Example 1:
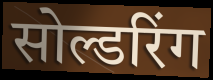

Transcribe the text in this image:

सोल्डरिंग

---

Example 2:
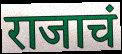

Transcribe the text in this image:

राजाचं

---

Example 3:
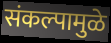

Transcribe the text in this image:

संकल्पामुळे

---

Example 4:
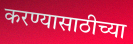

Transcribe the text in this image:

करण्यासाठीच्या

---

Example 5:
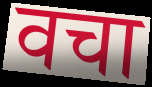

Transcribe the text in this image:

वचा